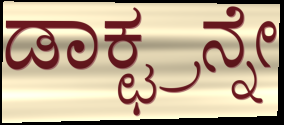
ಡಾಕ್ಟ್ರನ್ನೇ